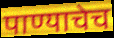
पाण्याचेच